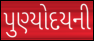
પુણ્યોદયની